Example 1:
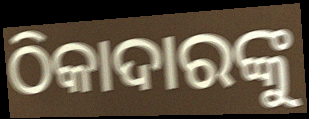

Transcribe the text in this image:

ଠିକାଦାରଙ୍କୁ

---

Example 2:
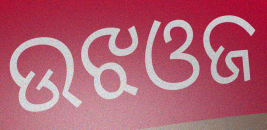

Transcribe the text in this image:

ଉଝଓଜ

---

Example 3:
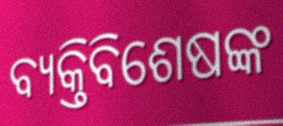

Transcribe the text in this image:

ବ୍ୟକ୍ତିବିଶେଷଙ୍କ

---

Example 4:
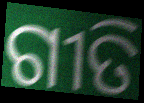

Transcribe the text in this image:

ଗୀତି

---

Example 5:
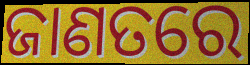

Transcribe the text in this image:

ଜାଣତରେ